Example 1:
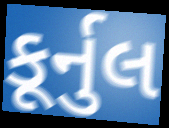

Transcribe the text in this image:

કૂર્નુલ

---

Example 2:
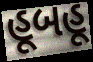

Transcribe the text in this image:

હૂબહૂ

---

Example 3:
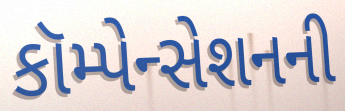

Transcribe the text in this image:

કૉમ્પેન્સેશનની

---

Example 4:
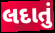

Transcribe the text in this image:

લદાતું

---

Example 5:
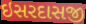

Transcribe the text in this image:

ઇસરદાસજી